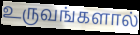
உருவங்களால்